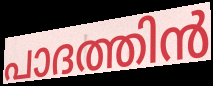
പാദത്തിൻ